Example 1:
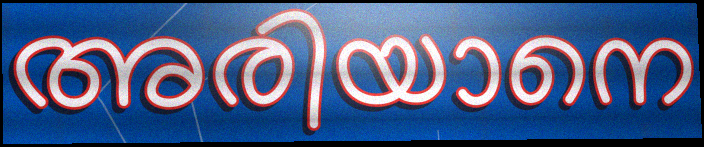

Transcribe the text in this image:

അരിയാനെ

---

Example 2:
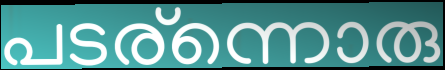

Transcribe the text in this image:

പടര്ന്നൊരു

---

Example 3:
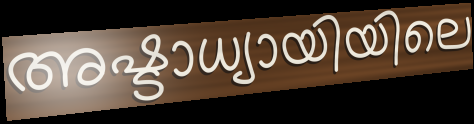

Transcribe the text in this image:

അഷ്ടാധ്യായിയിലെ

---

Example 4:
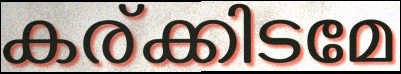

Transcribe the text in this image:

കര്ക്കിടമേ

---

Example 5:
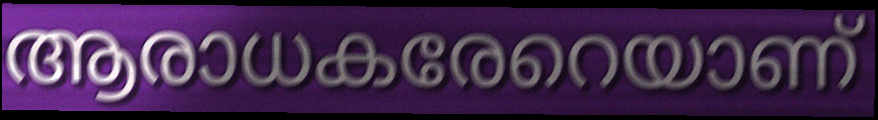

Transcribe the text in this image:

ആരാധകരേറെയാണ്